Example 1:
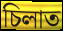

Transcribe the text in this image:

চিলাত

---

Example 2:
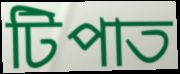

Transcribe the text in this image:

টিপাত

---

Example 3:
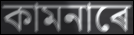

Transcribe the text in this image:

কামনাৰে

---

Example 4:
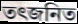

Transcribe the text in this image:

তৎজনিত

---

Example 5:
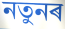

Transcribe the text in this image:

নতুনৰ